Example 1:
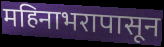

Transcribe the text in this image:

महिनाभरापासून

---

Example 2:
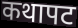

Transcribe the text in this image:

कथापट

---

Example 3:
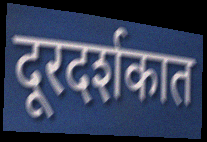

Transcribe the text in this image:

दूरदर्शकात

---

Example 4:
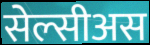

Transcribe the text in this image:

सेल्सीअस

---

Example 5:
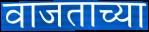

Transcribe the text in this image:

वाजताच्या